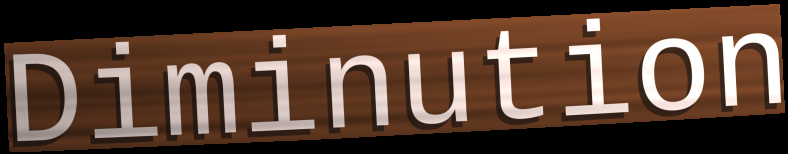
Diminution